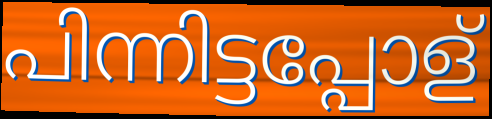
പിന്നിട്ടപ്പോള്